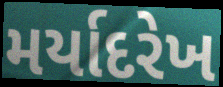
મર્યાદરેખ